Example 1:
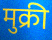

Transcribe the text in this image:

मुक्री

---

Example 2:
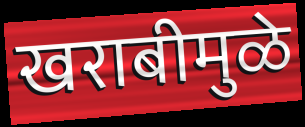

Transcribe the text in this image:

खराबीमुळे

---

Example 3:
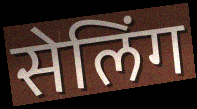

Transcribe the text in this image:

सेलिंग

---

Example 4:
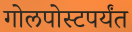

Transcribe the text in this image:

गोलपोस्टपर्यंत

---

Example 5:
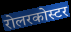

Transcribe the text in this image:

रोलरकोस्टर